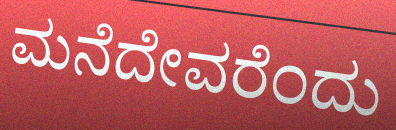
ಮನೆದೇವರೆಂದು